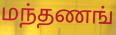
மந்தணங்